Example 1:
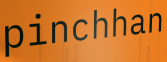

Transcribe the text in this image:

pinchhan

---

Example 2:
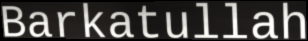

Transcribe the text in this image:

Barkatullah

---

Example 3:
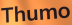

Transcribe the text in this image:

Thumo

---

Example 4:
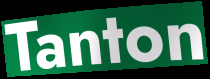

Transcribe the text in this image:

Tanton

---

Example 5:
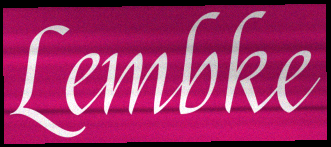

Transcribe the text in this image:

Lembke